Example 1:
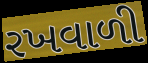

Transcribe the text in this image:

રખવાળી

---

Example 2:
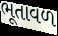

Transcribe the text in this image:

ભૂતાવળ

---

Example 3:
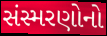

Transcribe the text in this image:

સંસ્મરણોનો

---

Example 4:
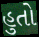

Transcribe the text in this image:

હુતો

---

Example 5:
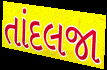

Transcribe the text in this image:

તાંદલજા